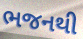
ભજનથી